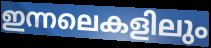
ഇന്നലെകളിലും